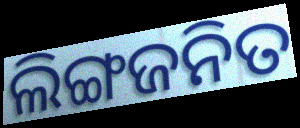
ଲିଙ୍ଗଜନିତ